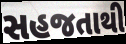
સહજતાથી